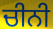
ਚੀਨੀ